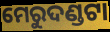
ମେରୁଦଣ୍ଡଟା